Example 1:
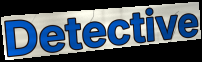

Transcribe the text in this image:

Detective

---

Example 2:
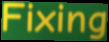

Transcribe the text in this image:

Fixing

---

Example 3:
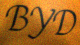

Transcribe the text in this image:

BYD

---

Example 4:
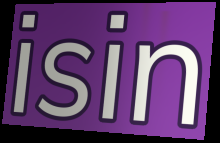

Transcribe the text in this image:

isin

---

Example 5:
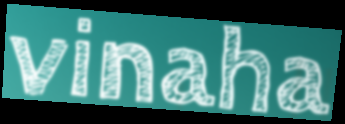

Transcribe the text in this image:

vinaha